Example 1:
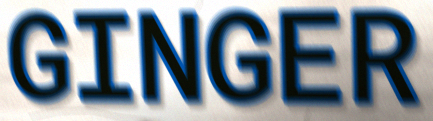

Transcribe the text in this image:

GINGER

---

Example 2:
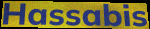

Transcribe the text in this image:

Hassabis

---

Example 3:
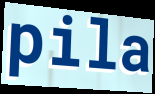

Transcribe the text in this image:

pila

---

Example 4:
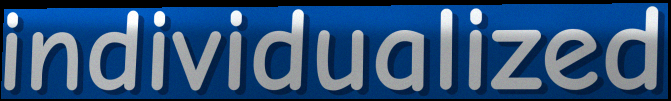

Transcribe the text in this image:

individualized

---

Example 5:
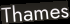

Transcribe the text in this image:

Thames